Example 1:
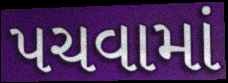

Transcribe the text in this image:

પચવામાં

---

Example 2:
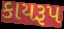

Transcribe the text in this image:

કાયરૂપ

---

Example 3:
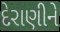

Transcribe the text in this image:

દેરાણીને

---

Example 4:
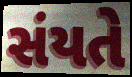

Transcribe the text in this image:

સંયતે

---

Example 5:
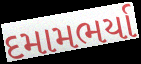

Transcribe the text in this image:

દમામભર્યા